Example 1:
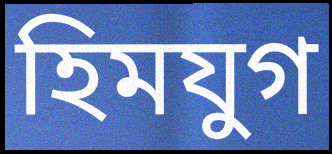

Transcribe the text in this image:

হিমযুগ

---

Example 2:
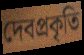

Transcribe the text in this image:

দেবপ্রকৃতি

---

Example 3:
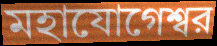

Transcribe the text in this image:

মহাযোগেশ্বর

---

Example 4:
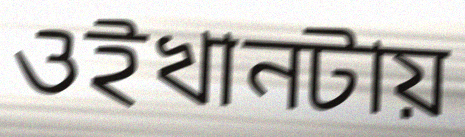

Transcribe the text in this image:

ওইখানটায়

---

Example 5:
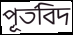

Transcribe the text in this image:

পূর্তবিদ